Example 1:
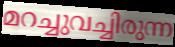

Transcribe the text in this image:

മറച്ചുവച്ചിരുന്ന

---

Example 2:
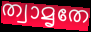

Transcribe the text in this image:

ത്വാമൃതേ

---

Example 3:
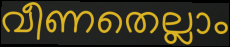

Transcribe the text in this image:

വീണതെല്ലാം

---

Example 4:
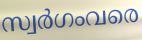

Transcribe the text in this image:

സ്വർഗംവരെ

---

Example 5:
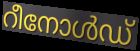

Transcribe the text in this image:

റീനോൾഡ്